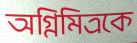
অগ্নিমিত্রকে